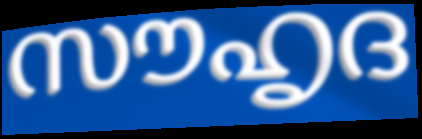
സൗഹൃദ